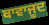
ਬਾਵਾਜੂਦ